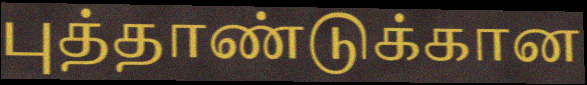
புத்தாண்டுக்கான